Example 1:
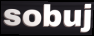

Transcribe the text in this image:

sobuj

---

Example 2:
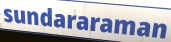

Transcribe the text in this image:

sundararaman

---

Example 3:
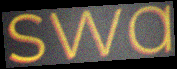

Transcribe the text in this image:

swa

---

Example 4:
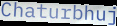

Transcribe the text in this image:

Chaturbhuj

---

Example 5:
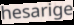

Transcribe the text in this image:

hesarige